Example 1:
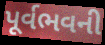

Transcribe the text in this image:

પૂર્વભવની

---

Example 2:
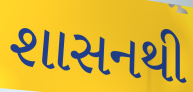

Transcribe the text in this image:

શાસનથી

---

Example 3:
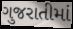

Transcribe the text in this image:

ગુજરાતીમાં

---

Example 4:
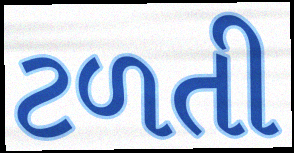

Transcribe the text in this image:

ટળતી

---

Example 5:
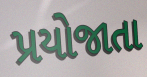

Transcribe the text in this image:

પ્રયોજાતા